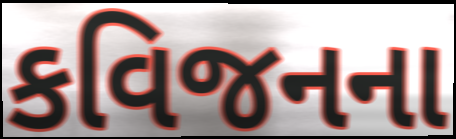
કવિજનના